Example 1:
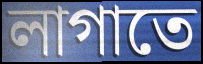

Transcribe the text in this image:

লাগাতে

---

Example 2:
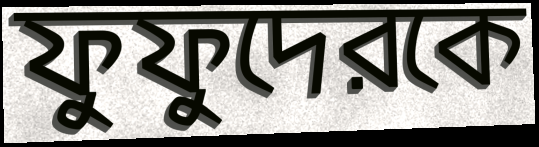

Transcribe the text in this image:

ফুফুদেরকে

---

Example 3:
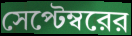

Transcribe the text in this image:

সেপ্টেম্বরের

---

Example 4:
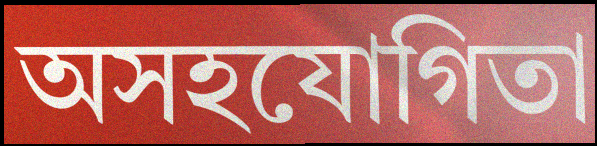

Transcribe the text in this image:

অসহযোগিতা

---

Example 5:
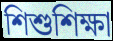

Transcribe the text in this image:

শিশুশিক্ষা